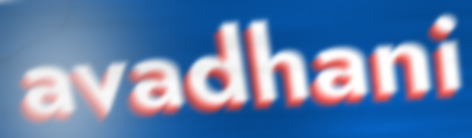
avadhani